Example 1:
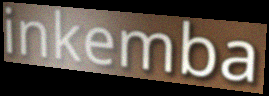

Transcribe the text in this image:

inkemba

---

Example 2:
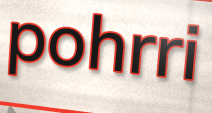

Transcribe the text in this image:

pohrri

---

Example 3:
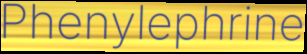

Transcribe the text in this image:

Phenylephrine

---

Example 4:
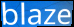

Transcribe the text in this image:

blaze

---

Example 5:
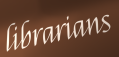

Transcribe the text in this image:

librarians